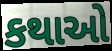
કથાઓ